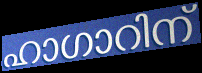
ഹാഗാറിന്